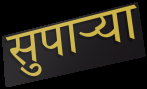
सुपार्‍या